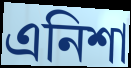
এনিশা